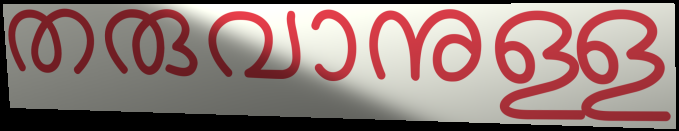
തരുവാനുള്ള